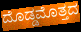
ದೊಡ್ಡಮೊತ್ತದ